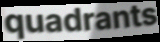
quadrants